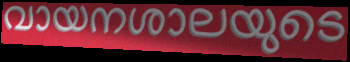
വായനശാലയുടെ